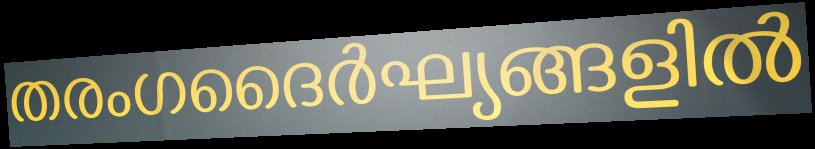
തരംഗദൈർഘ്യങ്ങളിൽ